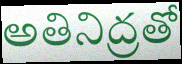
అతినిద్రతో